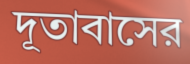
দূতাবাসের